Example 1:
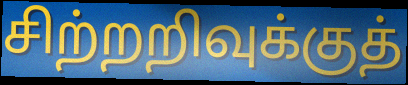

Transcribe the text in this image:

சிற்றறிவுக்குத்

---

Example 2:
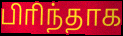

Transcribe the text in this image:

பிரிந்தாக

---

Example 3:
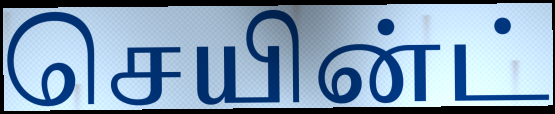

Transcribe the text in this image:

செயின்ட்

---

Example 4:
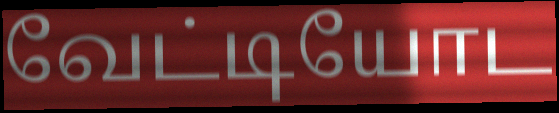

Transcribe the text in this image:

வேட்டியோட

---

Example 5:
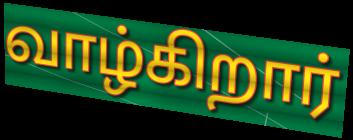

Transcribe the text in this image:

வாழ்கிறார்